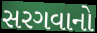
સરગવાનો